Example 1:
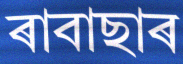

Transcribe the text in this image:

ৰাবাছাৰ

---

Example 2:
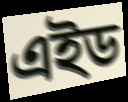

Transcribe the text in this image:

এইড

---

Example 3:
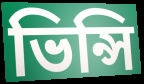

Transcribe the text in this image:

ভিন্সি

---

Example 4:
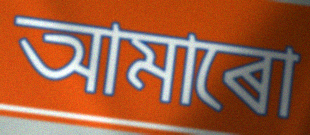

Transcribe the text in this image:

আমাৰো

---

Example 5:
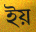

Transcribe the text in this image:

ইয়